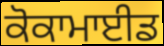
ਕੋਕਾਮਾਈਡ